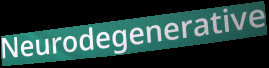
Neurodegenerative